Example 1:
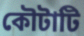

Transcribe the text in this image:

কৌটাটি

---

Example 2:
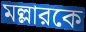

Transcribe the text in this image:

মল্লারকে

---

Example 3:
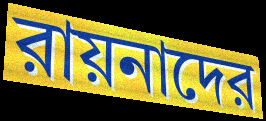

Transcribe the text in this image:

রায়নাদের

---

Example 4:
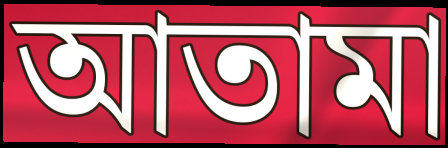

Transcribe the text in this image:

আতামা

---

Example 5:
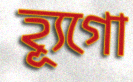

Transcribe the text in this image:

হ্যূগো